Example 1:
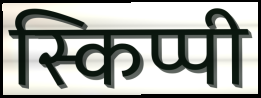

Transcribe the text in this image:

स्किप्पी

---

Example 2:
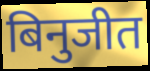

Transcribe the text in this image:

बिनुजीत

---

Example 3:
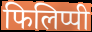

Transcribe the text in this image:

फिलिप्पी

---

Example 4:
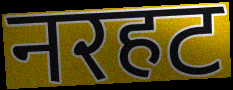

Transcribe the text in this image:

नरहट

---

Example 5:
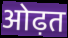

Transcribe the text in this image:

ओढ़त